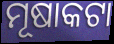
ମୂଷାକଟା